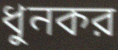
ধুনকর